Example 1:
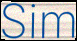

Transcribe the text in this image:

Sim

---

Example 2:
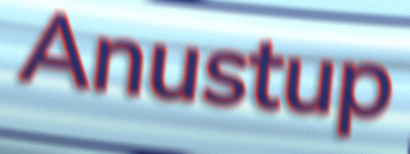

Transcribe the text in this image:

Anustup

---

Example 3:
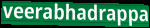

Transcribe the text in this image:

veerabhadrappa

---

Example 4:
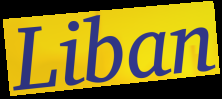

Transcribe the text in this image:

Liban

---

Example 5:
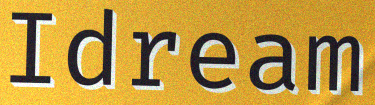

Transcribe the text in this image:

Idream